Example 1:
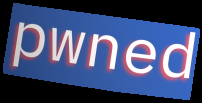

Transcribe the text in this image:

pwned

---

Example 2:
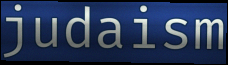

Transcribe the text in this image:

judaism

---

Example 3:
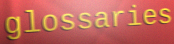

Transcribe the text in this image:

glossaries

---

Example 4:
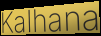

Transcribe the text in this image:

Kalhana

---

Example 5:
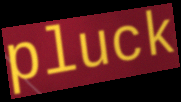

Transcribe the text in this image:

pluck